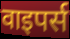
वाइपर्स